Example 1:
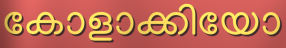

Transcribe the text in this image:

കോളാക്കിയോ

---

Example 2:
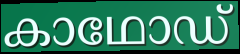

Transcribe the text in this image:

കാഥോഡ്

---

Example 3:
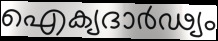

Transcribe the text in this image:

ഐക്യദാർഢ്യം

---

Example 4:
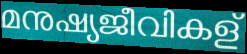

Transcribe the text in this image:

മനുഷ്യജീവികള്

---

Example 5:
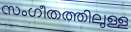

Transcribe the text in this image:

സംഗീതത്തിലുള്ള